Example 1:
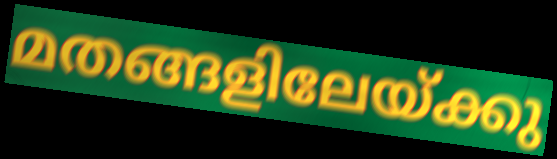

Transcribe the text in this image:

മതങ്ങളിലേയ്ക്കു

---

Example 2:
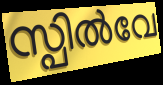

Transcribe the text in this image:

സ്പിൽവേ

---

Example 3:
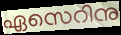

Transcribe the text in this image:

ഏസെറിനു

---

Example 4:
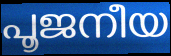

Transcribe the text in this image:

പൂജനീയ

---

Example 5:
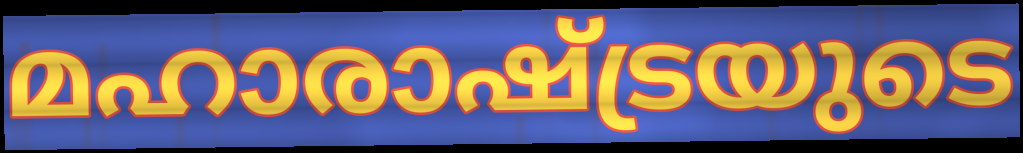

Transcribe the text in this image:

മഹാരാഷ്ട്രയുടെ